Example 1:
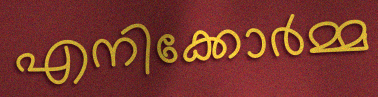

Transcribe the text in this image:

എനിക്കോർമ്മ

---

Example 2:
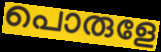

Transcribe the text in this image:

പൊരുളേ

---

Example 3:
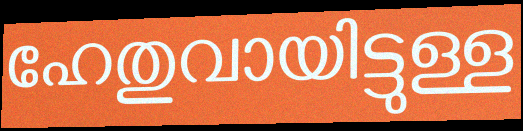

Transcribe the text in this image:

ഹേതുവായിട്ടുള്ള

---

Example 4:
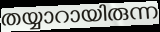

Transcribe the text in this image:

തയ്യാറായിരുന്ന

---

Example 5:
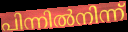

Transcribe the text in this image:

പിന്നിൽനിന്ന്